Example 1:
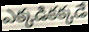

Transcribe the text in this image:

ఎక్కడికక్కడే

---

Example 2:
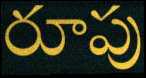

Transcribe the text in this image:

రూపు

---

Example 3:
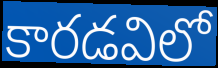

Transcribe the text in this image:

కారడవిలో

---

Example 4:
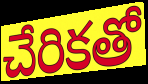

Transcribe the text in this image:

చేరికతో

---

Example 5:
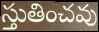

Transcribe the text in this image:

స్తుతించవు